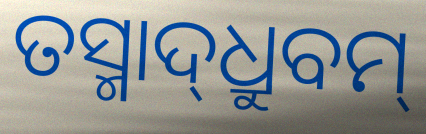
ତସ୍ମାଦ୍‌ଧ୍ରୁବମ୍